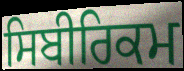
ਸਿਬੀਰਿਕਮ